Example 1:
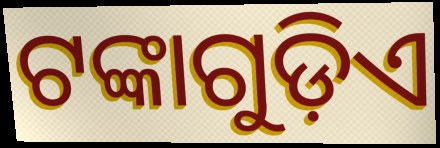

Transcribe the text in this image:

ଟଙ୍କାଗୁଡ଼ିଏ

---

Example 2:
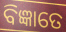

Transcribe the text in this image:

ବିଜ୍ଞାତେ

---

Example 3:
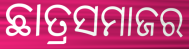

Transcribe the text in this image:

ଛାତ୍ରସମାଜର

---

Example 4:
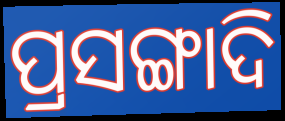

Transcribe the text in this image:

ପ୍ରସଙ୍ଗାଦି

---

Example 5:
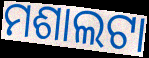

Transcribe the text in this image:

ମଶାଲଟା